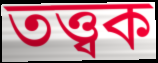
তত্ত্বক